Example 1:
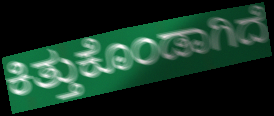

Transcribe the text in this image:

ಕಿತ್ತುಕೊಂಡಾಗಿದೆ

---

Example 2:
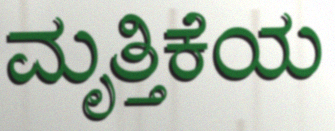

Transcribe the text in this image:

ಮೃತ್ತಿಕೆಯ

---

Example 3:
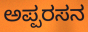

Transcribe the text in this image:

ಅಪ್ಪರಸನ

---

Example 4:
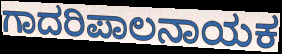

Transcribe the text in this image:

ಗಾದರಿಪಾಲನಾಯಕ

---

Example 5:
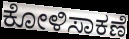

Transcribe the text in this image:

ಕೋಳಿಸಾಕಣೆ